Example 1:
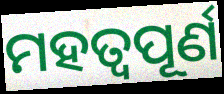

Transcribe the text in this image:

ମହତ୍ୱପୂର୍ଣ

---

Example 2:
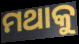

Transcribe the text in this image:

ମଥାକୁ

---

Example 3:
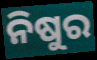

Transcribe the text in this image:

ନିଷୁର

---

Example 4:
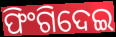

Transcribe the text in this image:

ଫିଂଗିଦେଇ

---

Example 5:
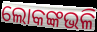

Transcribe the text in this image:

ଲୋକଙ୍କଭଳି